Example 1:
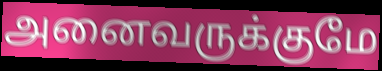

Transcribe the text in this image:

அனைவருக்குமே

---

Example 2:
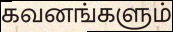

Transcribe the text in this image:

கவனங்களும்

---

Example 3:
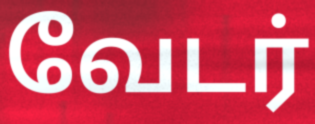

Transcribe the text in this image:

வேடர்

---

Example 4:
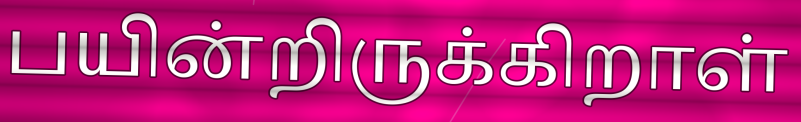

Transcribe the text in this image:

பயின்றிருக்கிறாள்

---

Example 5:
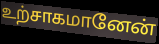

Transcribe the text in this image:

உற்சாகமானேன்